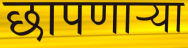
छापणाऱ्या